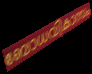
ബോധവികാസം